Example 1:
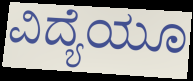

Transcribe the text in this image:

ವಿದ್ಯೆಯೂ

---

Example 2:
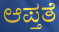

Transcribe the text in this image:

ಆಪ್ತತೆ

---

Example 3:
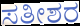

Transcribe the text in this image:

ಸತೀಶರ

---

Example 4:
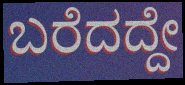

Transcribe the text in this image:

ಬರೆದದ್ದೇ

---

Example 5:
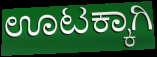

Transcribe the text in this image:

ಊಟಕ್ಕಾಗಿ